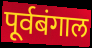
पूर्वबंगाल